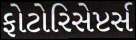
ફોટોરિસેપ્ટર્સ